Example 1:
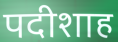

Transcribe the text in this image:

पदीशाह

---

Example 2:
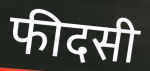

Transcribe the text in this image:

फीदसी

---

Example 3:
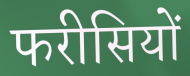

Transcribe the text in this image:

फरीसियों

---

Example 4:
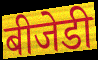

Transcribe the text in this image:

बीजेडी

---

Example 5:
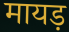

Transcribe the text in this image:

मायड़